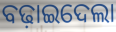
ବଢ଼ାଇଦେଲା